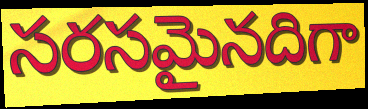
సరసమైనదిగా